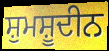
ਸ਼ੁਮਸ਼ੂਦੀਨ